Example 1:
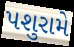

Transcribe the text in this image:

પશુરામે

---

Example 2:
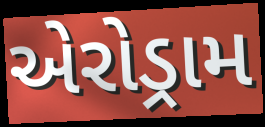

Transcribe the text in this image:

એરોડ્રામ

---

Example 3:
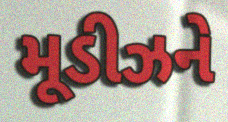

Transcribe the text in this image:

મૂડીઝને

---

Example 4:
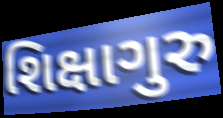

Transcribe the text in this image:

શિક્ષાગુરુ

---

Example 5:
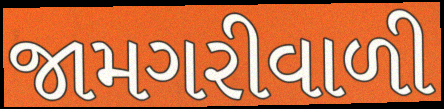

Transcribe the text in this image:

જામગરીવાળી